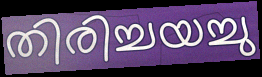
തിരിച്ചയച്ചു